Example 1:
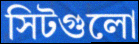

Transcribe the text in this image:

সিটগুলো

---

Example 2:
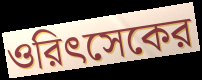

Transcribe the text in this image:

ওরিৎসেকের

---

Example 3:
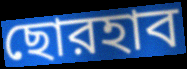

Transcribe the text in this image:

ছোরহাব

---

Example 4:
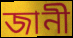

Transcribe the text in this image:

জানী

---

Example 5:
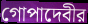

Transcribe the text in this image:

গোপাদেবীর